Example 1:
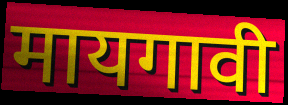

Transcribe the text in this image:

मायगावी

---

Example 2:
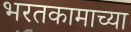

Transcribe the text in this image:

भरतकामाच्या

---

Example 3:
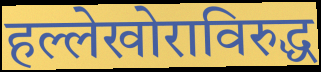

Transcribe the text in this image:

हल्लेखोराविरुद्ध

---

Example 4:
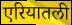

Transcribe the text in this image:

एरियातली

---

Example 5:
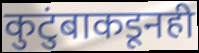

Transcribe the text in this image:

कुटुंबाकडूनही